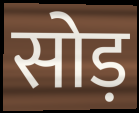
सोड़